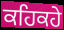
ਕਹਿਕਹੇ